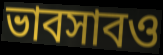
ভাবসাবও